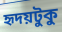
হৃদয়টুকু